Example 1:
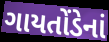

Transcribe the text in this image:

ગાયતોંડેનાં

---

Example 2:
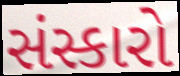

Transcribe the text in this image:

સંસ્કારો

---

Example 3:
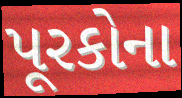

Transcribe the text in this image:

પૂરકોના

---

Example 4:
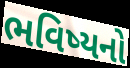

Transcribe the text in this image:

ભવિષ્યનો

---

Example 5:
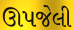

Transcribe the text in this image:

ઊપજેલી